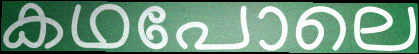
കഥപോലെ